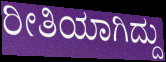
ರೀತಿಯಾಗಿದ್ದು